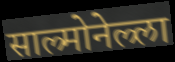
साल्मोनेल्ला